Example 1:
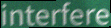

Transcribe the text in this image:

interfere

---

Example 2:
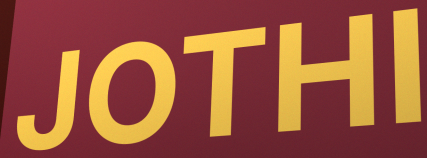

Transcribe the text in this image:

JOTHI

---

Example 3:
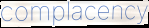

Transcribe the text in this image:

complacency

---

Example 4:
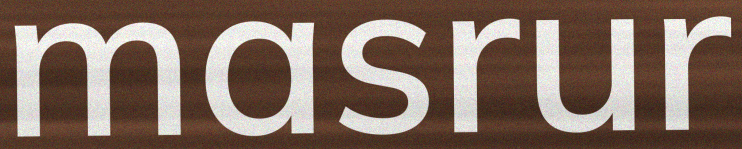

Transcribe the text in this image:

masrur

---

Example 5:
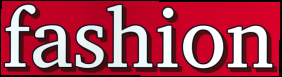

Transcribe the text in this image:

fashion